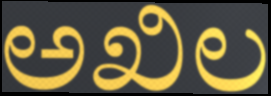
ಅಖಿಲ